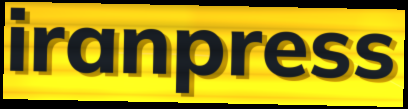
iranpress